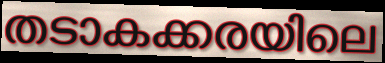
തടാകക്കരയിലെ